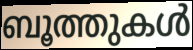
ബൂത്തുകൾ